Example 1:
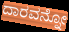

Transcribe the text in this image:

ದಾರವನ್ನೋ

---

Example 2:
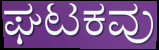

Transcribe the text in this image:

ಘಟಕವು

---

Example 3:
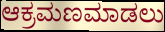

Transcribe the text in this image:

ಆಕ್ರಮಣಮಾಡಲು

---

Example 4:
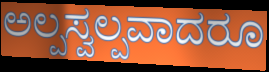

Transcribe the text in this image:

ಅಲ್ಪಸ್ವಲ್ಪವಾದರೂ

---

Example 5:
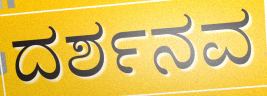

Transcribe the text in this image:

ದರ್ಶನವ